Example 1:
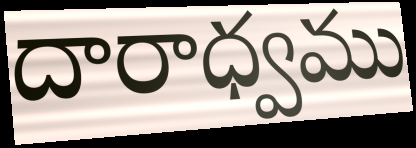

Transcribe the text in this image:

దారాధ్వము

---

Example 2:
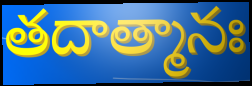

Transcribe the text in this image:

తదాత్మానః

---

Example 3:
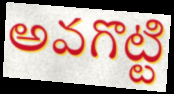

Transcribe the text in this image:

అవగొట్టి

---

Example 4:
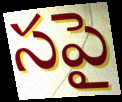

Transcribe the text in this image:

సపై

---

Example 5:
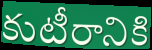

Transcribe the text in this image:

కుటీరానికి